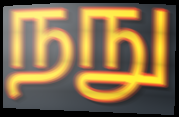
நநு